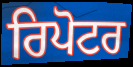
ਰਿਪੋਟਰ